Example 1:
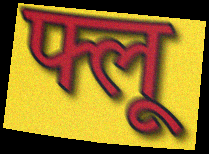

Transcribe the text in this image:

फ्लू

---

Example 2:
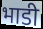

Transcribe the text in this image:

भाडी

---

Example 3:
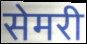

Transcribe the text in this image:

सेमरी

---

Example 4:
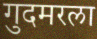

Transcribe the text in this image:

गुदमरला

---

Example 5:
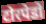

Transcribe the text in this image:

टोरपेडो